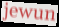
jewun